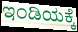
ಇಂಡಿಯಕ್ಕೆ